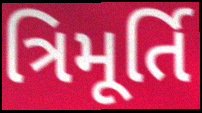
ત્રિમૂર્તિ